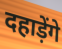
दहाड़ेंगे